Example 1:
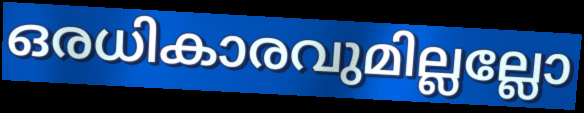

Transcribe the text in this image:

ഒരധികാരവുമില്ലല്ലോ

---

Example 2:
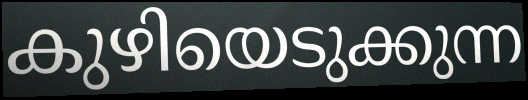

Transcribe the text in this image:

കുഴിയെടുക്കുന്ന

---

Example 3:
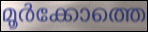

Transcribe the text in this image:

മൂർക്കോത്തെ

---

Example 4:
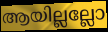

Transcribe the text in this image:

ആയില്ലല്ലോ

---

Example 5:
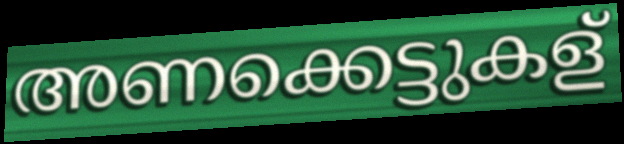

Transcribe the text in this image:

അണക്കെട്ടുകള്